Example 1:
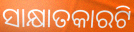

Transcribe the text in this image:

ସାକ୍ଷାତକାରଟି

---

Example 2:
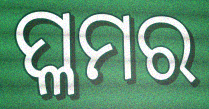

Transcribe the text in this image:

ପ୍ଳମର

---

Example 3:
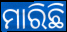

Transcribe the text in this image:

ମାରିଛି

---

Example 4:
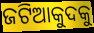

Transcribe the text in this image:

ଜଟିଆକୁଦକୁ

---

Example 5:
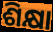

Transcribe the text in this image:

ଶିକ୍ଷା